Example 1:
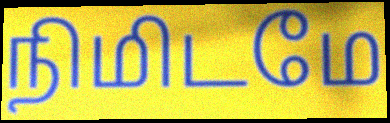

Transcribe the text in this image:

நிமிடமே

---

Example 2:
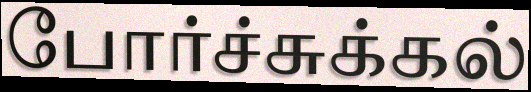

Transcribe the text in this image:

போர்ச்சுக்கல்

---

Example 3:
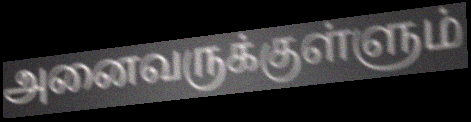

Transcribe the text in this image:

அனைவருக்குள்ளும்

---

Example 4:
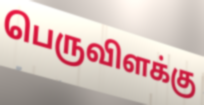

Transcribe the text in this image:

பெருவிளக்கு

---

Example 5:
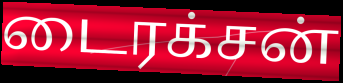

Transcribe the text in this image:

டைரக்சன்